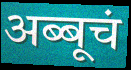
अब्बूचं